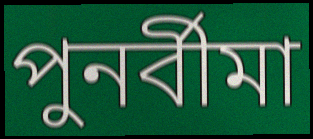
পুনর্বীমা